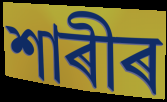
শাৰীৰ